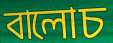
বালোচ